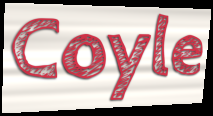
Coyle